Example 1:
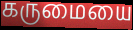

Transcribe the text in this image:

கருமையை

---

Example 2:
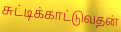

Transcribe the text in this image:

சுட்டிக்காட்டுவதன்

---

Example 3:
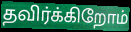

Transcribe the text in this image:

தவிர்க்கிறோம்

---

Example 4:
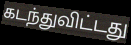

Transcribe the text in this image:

கடந்துவிட்டது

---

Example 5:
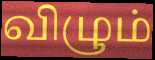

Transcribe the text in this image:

விழும்